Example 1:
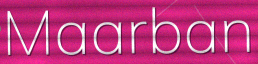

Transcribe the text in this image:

Maarban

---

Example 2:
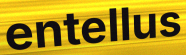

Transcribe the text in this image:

entellus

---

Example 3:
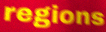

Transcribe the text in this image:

regions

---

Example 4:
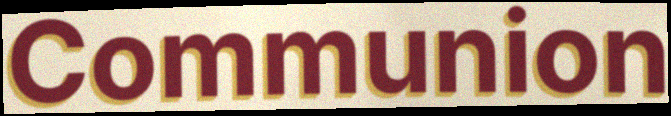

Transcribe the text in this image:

Communion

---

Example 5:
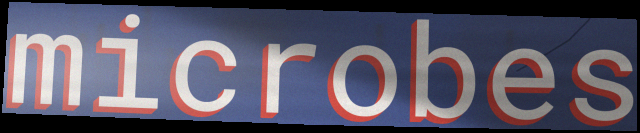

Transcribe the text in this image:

microbes